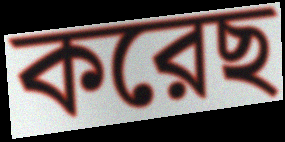
করেছ